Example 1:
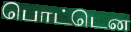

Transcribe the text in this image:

பொட்டென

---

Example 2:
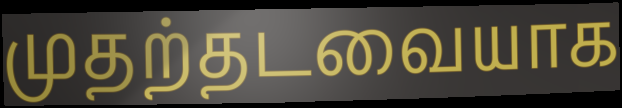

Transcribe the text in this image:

முதற்தடவையாக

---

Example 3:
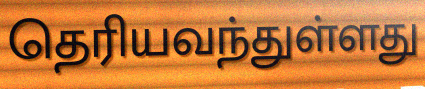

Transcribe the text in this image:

தெரியவந்துள்ளது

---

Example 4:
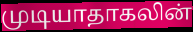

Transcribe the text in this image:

முடியாதாகலின்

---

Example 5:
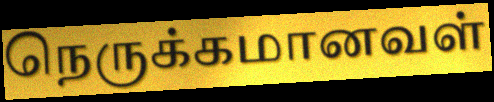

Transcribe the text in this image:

நெருக்கமானவள்